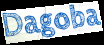
Dagoba